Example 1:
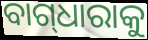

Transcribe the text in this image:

ବାଗ୍‌ଧାରାକୁ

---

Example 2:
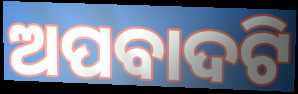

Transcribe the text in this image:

ଅପବାଦଟି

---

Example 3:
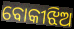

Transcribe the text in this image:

ବୋକୀଝିଅ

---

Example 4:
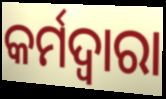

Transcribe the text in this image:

କର୍ମଦ୍ବାରା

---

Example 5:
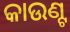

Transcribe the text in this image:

କାଉଣ୍ଟ